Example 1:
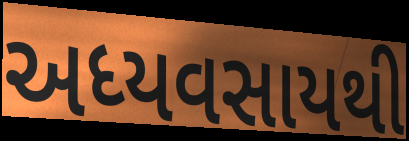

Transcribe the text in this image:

અધ્યવસાયથી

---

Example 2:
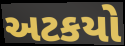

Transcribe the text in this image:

અટકયો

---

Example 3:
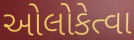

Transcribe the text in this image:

ઓલોકેત્વા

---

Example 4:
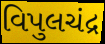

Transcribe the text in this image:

વિપુલચંદ્ર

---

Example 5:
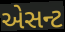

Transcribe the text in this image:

એસન્ટ